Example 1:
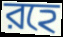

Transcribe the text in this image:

রহে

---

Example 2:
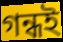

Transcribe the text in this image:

গন্ধই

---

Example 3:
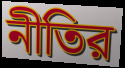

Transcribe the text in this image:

নীতির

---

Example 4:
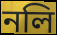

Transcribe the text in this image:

নলি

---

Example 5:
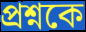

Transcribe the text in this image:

প্রশ্নকে